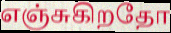
எஞ்சுகிறதோ